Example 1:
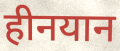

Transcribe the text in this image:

हीनयान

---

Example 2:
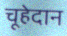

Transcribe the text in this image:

चूहेदान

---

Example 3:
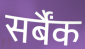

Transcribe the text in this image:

सर्बैंक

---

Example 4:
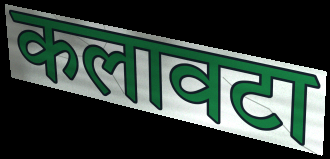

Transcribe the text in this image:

कलावटा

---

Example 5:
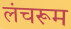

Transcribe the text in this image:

लंचरूम